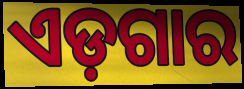
ଏଡ଼ଗାର